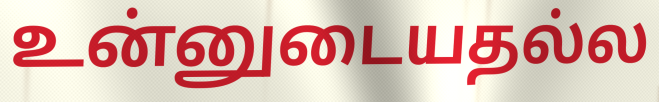
உன்னுடையதல்ல